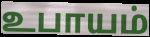
உபாயம்